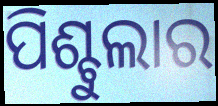
ପିଶ୍ଚୁଲାର